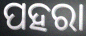
ପହରା